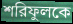
শরিফুলকে